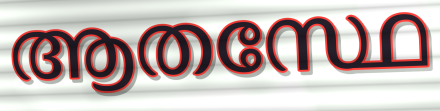
ആതസ്ഥേ